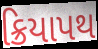
ક્રિયાપથ